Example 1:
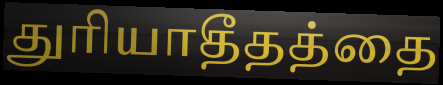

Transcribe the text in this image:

துரியாதீதத்தை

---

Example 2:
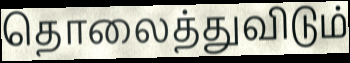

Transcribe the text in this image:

தொலைத்துவிடும்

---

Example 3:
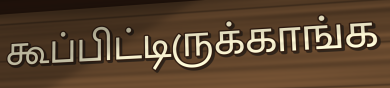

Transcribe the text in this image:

கூப்பிட்டிருக்காங்க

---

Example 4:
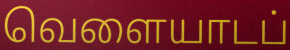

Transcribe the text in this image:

வெளையாடப்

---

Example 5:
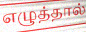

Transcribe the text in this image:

எழுத்தால்